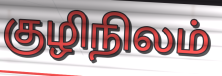
குழிநிலம்